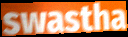
swastha